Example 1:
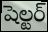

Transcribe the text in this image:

షెల్టర్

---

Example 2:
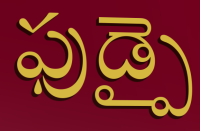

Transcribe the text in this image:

ఫుడ్పై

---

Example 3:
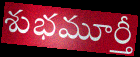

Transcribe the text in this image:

శుభమూర్తీ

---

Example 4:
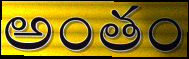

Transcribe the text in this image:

అంతం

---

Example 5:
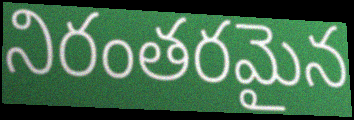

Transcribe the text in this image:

నిరంతరమైన